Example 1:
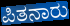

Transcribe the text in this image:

ಪಿತನಾರು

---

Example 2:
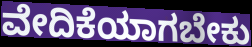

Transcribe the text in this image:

ವೇದಿಕೆಯಾಗಬೇಕು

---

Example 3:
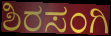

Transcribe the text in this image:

ಶಿರಸಂಗಿ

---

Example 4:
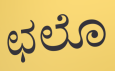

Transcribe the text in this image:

ಛಲೊ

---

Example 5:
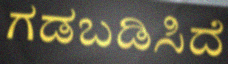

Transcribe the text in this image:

ಗಡಬಡಿಸಿದೆ